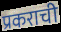
प्रकराची